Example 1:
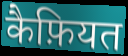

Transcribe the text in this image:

कैफ़ियत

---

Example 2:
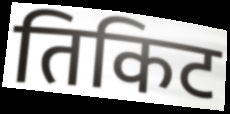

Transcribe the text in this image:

तिकिट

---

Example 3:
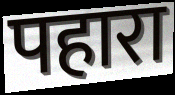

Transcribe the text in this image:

पहारा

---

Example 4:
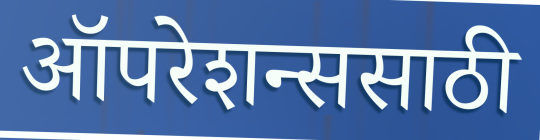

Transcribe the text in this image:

ऑपरेशन्ससाठी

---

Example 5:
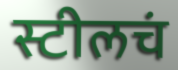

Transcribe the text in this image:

स्टीलचं